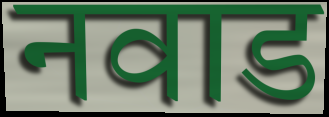
नवाड